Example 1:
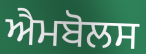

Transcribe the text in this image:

ਐਮਬੋਲਸ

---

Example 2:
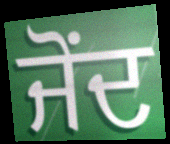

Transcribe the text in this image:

ਜੋਂਦ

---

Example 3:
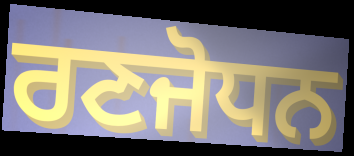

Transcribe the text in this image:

ਰਣਜੋਧਨ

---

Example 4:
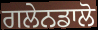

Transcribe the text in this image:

ਗਲੇਨਡਾਲੋ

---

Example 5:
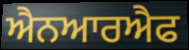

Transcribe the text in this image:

ਐਨਆਰਐਫ